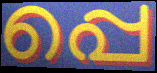
പ്പെ